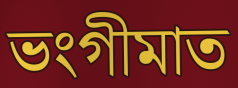
ভংগীমাত